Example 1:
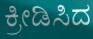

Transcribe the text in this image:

ಕ್ರೀಡಿಸಿದ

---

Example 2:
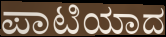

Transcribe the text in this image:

ಪಾಟಿಯಾದ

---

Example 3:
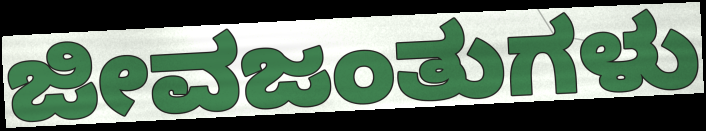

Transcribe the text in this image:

ಜೀವಜಂತುಗಳು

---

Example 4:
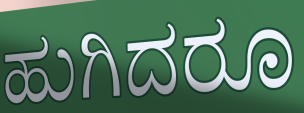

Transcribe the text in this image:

ಹುಗಿದರೂ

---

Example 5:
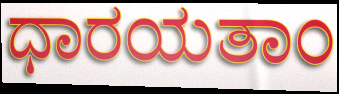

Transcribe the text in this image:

ಧಾರಯತಾಂ